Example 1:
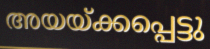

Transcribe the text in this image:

അയയ്ക്കപ്പെട്ടു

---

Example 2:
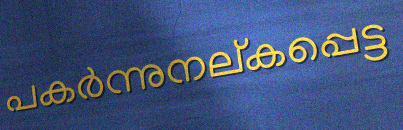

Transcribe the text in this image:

പകർന്നുനല്കപ്പെട്ട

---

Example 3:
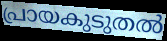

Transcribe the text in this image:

പ്രായകുടുതൽ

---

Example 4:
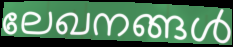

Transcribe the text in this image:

ലേഖനങ്ങൾ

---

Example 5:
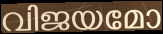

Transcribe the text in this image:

വിജയമോ